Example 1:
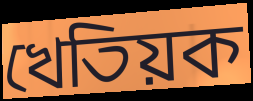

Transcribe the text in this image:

খেতিয়ক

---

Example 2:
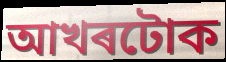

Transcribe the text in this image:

আখৰটোক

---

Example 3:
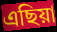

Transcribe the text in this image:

এছিয়া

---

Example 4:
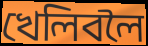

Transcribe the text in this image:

খেলিবলৈ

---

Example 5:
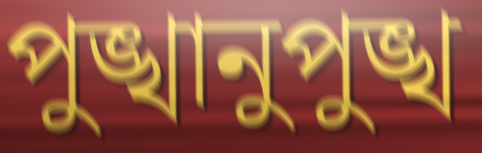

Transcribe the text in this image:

পুঙ্খানুপুঙ্খ